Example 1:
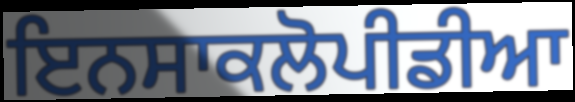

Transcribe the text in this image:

ਇਨਸਾਕਲੋਪੀਡੀਆ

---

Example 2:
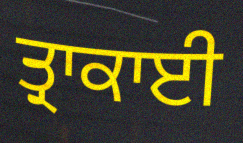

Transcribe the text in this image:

ਤ੍ਰਾਕਾਈ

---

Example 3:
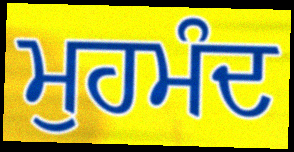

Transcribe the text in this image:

ਮੁਹਮੰਦ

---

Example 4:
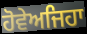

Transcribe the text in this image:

ਹੋਵੇਅਜਿਹਾ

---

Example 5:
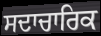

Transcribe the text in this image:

ਸਦਾਚਾਰਿਕ